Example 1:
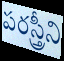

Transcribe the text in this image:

పరస్త్రీని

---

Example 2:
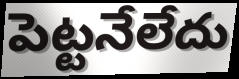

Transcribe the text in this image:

పెట్టనేలేదు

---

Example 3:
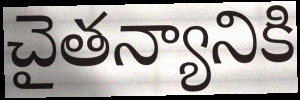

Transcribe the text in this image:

చైతన్యానికి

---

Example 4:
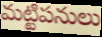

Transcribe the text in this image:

మట్టిపనులు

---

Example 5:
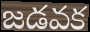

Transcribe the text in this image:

జడవక